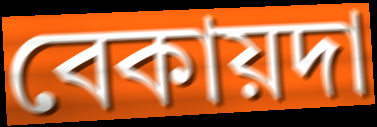
বেকায়দা